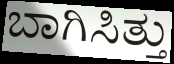
ಬಾಗಿಸಿತ್ತು